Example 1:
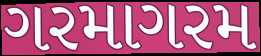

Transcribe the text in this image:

ગરમાગરમ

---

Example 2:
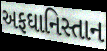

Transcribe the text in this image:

અફઘાનિસ્તાન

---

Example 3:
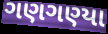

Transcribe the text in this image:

ગણગણ્યા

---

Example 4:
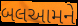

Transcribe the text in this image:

બલઆમને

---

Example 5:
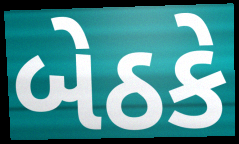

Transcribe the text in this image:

બેઠકે